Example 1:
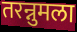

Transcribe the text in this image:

तरन्नुमला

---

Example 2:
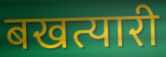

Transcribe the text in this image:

बखत्यारी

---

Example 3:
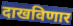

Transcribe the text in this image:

दाखविणार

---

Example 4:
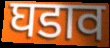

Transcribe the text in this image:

घडाव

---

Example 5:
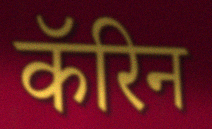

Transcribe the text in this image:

कॅरिन